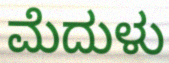
ಮೆದುಳು